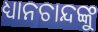
ଧ୍ୟାନଚାନ୍ଦଙ୍କୁ